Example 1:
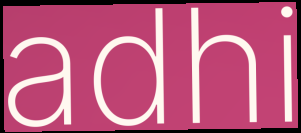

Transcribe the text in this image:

adhi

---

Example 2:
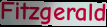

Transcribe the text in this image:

Fitzgerald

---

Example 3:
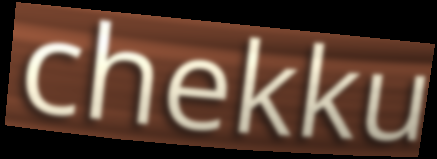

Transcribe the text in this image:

chekku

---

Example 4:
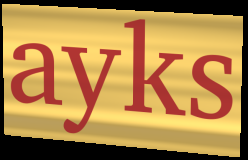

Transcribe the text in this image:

ayks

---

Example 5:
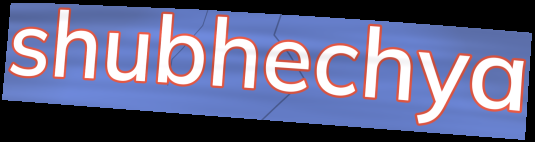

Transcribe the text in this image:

shubhechya